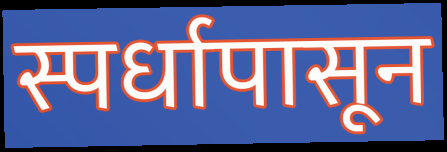
स्पर्धापासून